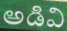
అడివి